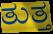
ತುತ್ತ